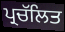
ਪ੍ਰਚੱਲਿਤ